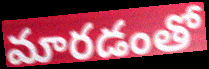
మారడంతో